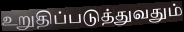
உறுதிப்படுத்துவதும்